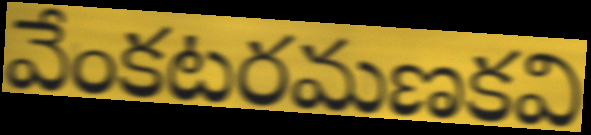
వేంకటరమణకవి